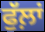
ਫੁੱਲ਼ਾਂ